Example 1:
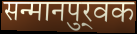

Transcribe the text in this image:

सन्मानपुर्वक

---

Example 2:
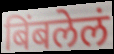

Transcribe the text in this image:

बिंबलेलं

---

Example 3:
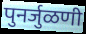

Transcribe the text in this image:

पुनर्जुळणी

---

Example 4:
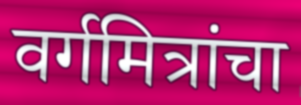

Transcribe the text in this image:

वर्गमित्रांचा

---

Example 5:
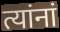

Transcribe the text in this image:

त्यांनां